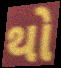
થો